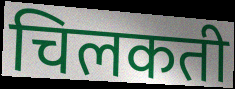
चिलकती